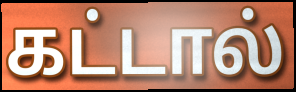
கட்டால்